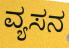
ವ್ಯಸನ